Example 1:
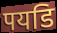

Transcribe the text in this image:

पयडि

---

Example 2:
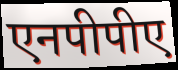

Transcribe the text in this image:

एनपीपीए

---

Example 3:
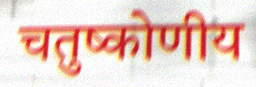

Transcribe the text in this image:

चतुष्कोणीय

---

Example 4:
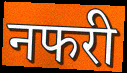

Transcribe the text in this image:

नफरी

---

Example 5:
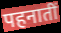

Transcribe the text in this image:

पहनातीं